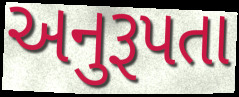
અનુરૂપતા